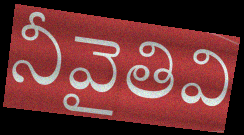
నీవైతివి